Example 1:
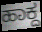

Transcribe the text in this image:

ಹಾಕ್ದ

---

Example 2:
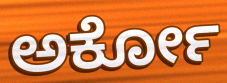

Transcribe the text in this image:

ಅರ್ಕೋ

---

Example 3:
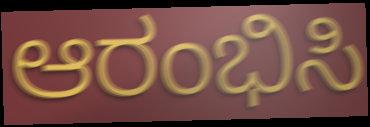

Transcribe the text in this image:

ಆರಂಭಿಸಿ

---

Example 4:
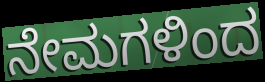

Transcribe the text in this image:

ನೇಮಗಳಿಂದ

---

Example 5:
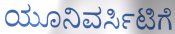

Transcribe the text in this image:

ಯೂನಿವರ್ಸಿಟಿಗೆ